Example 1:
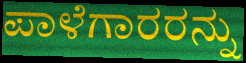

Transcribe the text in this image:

ಪಾಳೆಗಾರರನ್ನು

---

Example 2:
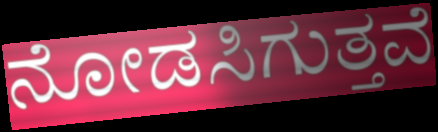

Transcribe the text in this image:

ನೋಡಸಿಗುತ್ತವೆ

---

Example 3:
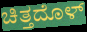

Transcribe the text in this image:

ಚಿತ್ತದೊಳ್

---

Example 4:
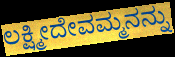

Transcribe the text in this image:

ಲಕ್ಷ್ಮೀದೇವಮ್ಮನನ್ನು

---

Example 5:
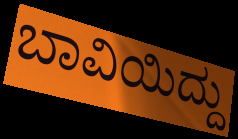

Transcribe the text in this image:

ಬಾವಿಯಿದ್ದು